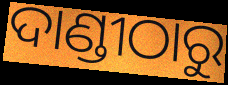
ଦାଣ୍ଡୀଠାରୁ